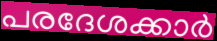
പരദേശക്കാർ